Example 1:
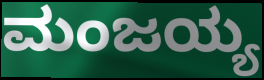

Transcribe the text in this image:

ಮಂಜಯ್ಯ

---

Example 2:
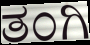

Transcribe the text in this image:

ತಂಗಿ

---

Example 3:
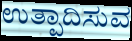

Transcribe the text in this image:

ಉತ್ಪಾದಿಸುವ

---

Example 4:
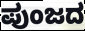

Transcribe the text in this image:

ಪುಂಜದ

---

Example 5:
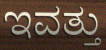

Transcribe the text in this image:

ಇವತ್ತು